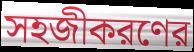
সহজীকরণের